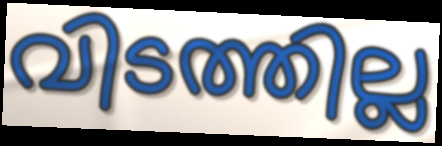
വിടത്തില്ല